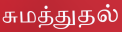
சுமத்துதல்